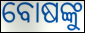
ବୋଷଙ୍କୁ